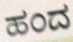
ಹಂದ